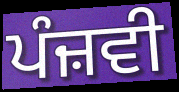
ਪੰਜ਼ਵੀ